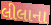
લીલાના